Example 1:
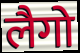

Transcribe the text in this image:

लैगो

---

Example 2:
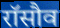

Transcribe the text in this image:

रॉसौव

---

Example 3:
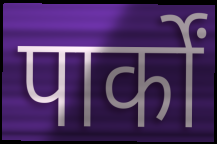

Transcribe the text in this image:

पार्कों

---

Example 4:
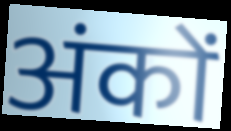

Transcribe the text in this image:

अंकों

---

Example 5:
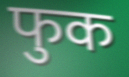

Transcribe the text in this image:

फुक